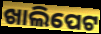
ଖାଲିପେଟ